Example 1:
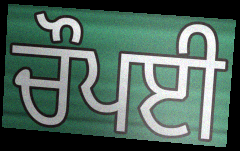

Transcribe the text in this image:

ਚੌਪਈ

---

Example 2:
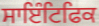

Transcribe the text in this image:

ਸਾਇੰਟਿਫਿਕ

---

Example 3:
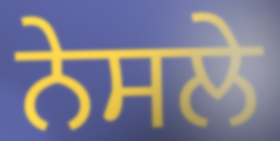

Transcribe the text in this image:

ਨੇਸਲੇ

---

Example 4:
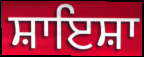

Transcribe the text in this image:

ਸ਼ਾਇਸ਼ਾ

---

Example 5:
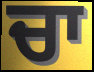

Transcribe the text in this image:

ਚਾ